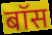
बॉस